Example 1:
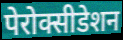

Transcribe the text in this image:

पेरोक्सीडेशन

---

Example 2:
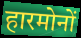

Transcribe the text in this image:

हारमोनों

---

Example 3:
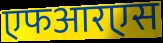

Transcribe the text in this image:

एफआरएस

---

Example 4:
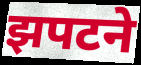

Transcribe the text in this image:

झपटने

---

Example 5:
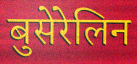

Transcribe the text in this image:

बुसेरेलिन